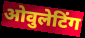
ओवुलेटिंग